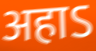
अहाऽ